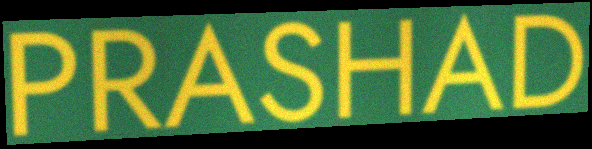
PRASHAD